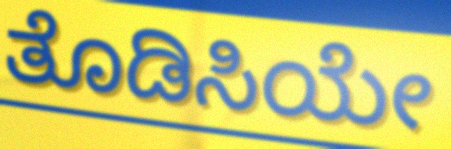
ತೊಡಿಸಿಯೇ